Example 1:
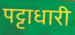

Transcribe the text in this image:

पट्टाधारी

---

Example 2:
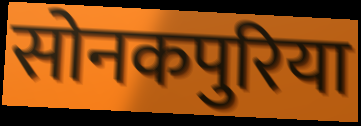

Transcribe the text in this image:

सोनकपुरिया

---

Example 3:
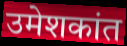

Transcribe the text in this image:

उमेशकांत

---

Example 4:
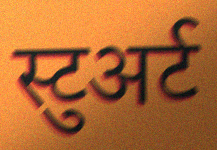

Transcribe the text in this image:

स्टुअर्ट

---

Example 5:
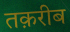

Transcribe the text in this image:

तक़रीब